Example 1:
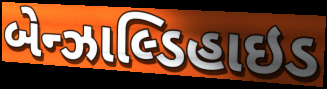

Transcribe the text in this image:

બેન્ઝાલ્ડિહાઇડ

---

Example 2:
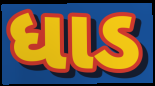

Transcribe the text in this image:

ધાડ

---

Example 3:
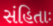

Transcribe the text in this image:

સંહિતાઃ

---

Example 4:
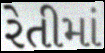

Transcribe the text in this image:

રેતીમાં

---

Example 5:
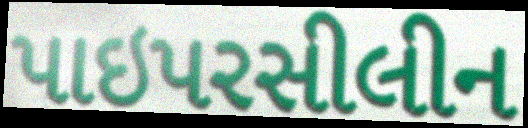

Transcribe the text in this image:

પાઇપરસીલીન